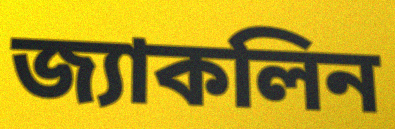
জ্যাকলিন